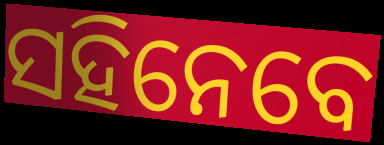
ସହିନେବେ